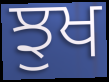
ਝੁਖ